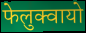
फेलुक्वायो